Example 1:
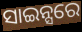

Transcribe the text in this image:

ସାଇନ୍ସରେ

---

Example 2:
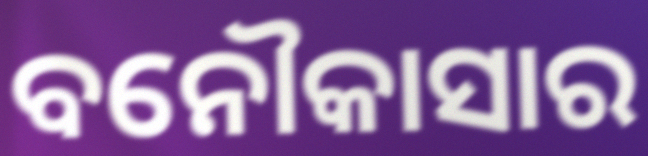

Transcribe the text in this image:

ବନୌକାସାର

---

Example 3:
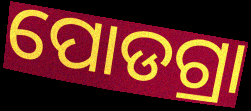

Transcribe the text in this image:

ପୋଡଗ୍ରା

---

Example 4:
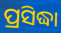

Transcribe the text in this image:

ପ୍ରସିଦ୍ଧା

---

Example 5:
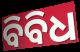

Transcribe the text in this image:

ବିବିଧ